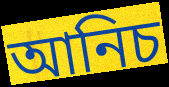
আনিচ